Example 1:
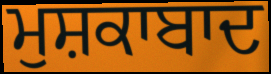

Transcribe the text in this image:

ਮੁਸ਼ਕਾਬਾਦ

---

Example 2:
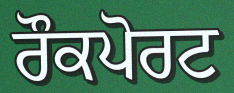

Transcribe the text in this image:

ਰੌਕਪੋਰਟ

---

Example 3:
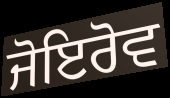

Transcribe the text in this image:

ਜੋਇਰੋਵ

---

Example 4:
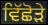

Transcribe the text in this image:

ਵਿੱਛੋੜੇ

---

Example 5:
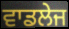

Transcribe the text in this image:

ਵਾਡਲੇਜ